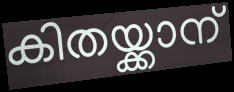
കിതയ്ക്കാന്